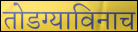
तोडग्याविनाच